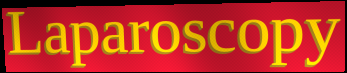
Laparoscopy